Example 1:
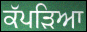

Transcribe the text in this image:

ਕੱਪੜਿਆ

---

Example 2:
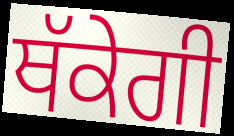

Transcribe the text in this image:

ਥੱਕੇਗੀ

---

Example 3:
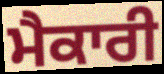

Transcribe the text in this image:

ਮੈਕਾਰੀ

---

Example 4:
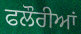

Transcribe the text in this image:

ਫਲੌਰੀਆਂ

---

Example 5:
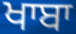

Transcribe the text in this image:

ਖਾਬਾ